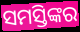
ସମସ୍ତିଙ୍କର